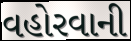
વહોરવાની